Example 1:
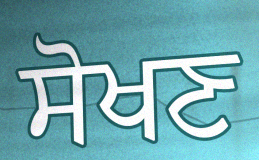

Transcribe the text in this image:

ਸੋਖਣ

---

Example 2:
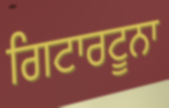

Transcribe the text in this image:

ਗਿਟਾਰਟੂਨਾ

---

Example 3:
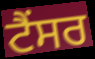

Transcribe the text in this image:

ਟੈਂਸਰ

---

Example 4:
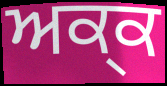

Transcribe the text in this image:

ਅਕ੍ਕ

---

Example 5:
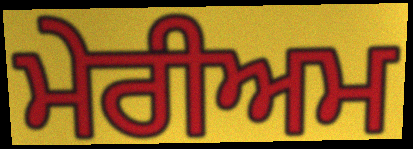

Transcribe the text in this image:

ਮੇਰੀਅਮ